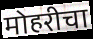
मोहरीचा